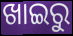
ଖାଇରୁ